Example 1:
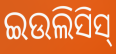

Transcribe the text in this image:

ଇଉଲିସିସ୍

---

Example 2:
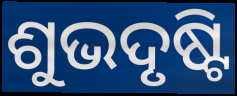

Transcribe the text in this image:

ଶୁଭଦୃଷ୍ଟି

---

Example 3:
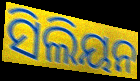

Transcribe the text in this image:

ସିଲିୟନ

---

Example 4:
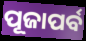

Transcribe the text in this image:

ପୂଜାପର୍ବ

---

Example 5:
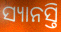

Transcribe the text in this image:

ସ୍ୟାନସ୍ତି